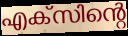
എക്‌സിന്റെ